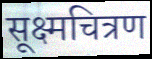
सूक्ष्मचित्रण